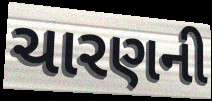
ચારણની